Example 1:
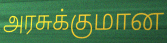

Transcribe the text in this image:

அரசுக்குமான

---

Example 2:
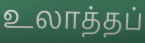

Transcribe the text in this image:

உலாத்தப்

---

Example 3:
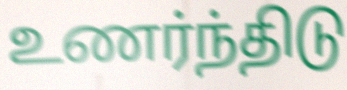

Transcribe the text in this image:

உணர்ந்திடு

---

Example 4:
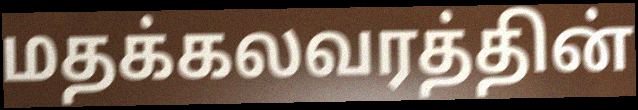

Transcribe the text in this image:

மதக்கலவரத்தின்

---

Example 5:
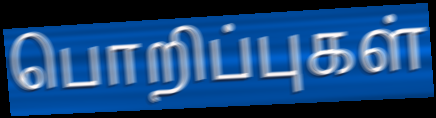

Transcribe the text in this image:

பொறிப்புகள்